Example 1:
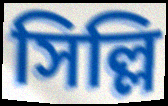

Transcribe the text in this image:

সিল্লি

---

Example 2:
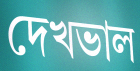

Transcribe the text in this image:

দেখভাল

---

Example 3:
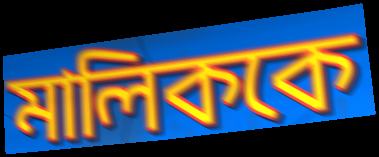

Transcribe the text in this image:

মালিককে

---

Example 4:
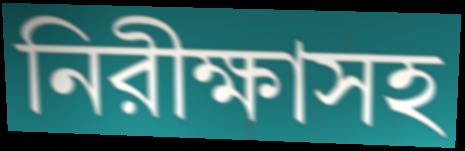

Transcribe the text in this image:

নিরীক্ষাসহ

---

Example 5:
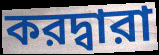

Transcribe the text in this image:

করদ্বারা